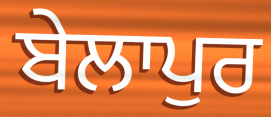
ਬੇਲਾਪੁਰ